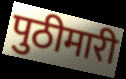
पुठीमारी